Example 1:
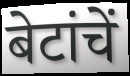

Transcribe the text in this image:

बेटांचें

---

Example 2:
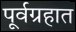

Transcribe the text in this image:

पूर्वग्रहात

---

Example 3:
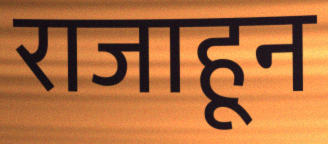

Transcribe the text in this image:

राजाहून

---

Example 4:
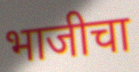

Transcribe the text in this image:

भाजीचा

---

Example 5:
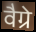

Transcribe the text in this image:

वैग्रे